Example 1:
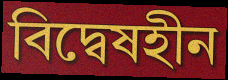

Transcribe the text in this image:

বিদ্বেষহীন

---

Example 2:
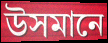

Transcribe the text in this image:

উসমানে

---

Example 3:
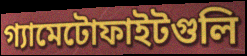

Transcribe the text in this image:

গ্যামেটোফাইটগুলি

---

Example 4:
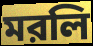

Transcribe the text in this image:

মরলি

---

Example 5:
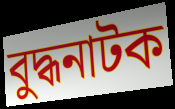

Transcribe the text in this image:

বুদ্ধনাটক